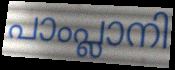
പാംപ്ലാനി